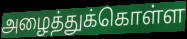
அழைத்துக்கொள்ள